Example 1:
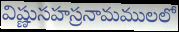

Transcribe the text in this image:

విష్ణుసహస్రనామములలో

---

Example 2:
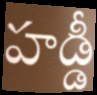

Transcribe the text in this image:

హడ్డీ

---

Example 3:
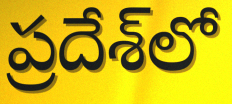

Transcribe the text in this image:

ప్రదేశ్‌లో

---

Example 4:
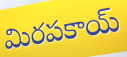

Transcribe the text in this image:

మిరపకాయ్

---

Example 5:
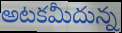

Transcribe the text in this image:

అటకమీదున్న